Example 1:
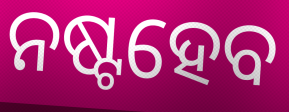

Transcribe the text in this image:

ନଷ୍ଟହେବ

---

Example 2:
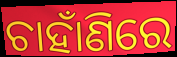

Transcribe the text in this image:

ଚାହାଁଣିରେ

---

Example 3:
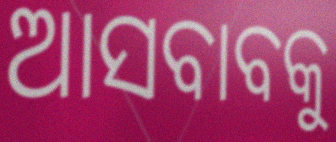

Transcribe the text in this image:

ଆସବାବକୁ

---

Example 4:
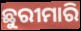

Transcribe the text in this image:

ଛୁରୀମାରି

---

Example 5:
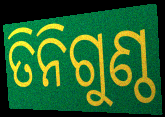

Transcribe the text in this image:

ତିନିଗୁଣ୍ଠ